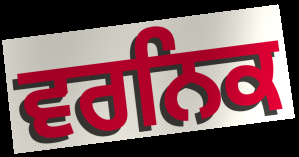
ਵਰਨਿਕ